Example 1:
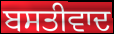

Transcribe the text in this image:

ਬਸਤੀਵਾਦ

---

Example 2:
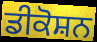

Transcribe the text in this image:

ਡੀਕੋਸ਼ਨ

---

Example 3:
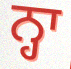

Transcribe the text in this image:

ਨ੍ਹਾ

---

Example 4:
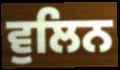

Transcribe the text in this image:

ਵੁਲਿਨ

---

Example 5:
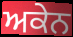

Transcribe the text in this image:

ਅਕੇਨ